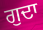
ਗੁਦਾ